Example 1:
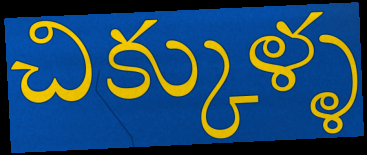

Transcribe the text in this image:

చిక్కుళ్ళ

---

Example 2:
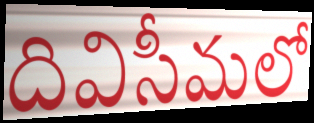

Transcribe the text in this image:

దివిసీమలో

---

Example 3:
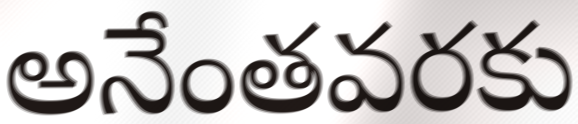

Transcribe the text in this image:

అనేంతవరకు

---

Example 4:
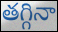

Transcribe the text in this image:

తగ్గినా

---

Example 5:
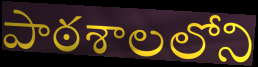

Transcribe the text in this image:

పాఠశాలలోని